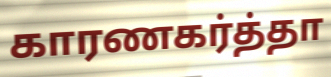
காரணகர்த்தா